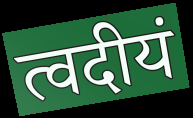
त्वदीयं